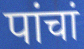
पांचां